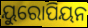
ୟୁରୋପିୟନ